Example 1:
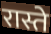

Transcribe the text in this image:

रास्ते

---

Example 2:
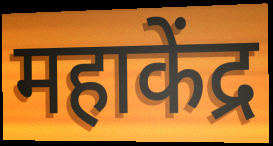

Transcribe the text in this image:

महाकेंद्र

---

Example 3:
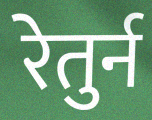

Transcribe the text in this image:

रेतुर्न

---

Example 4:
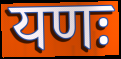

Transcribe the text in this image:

यणः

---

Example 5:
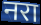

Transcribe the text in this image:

नरा